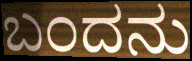
ಬಂದನು